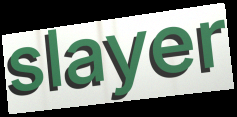
slayer